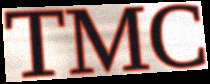
TMC